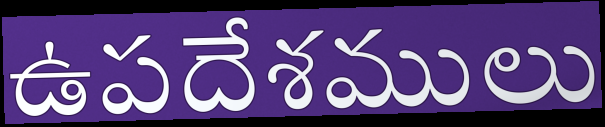
ఉపదేశములు